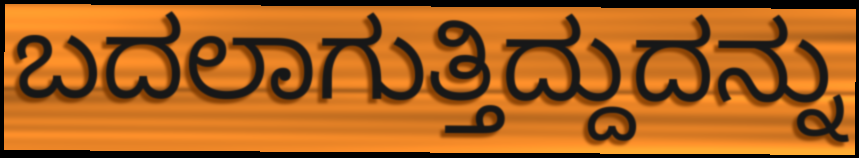
ಬದಲಾಗುತ್ತಿದ್ದುದನ್ನು